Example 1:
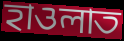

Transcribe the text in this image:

হাওলাত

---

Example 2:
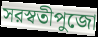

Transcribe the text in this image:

সরস্বতীপুজো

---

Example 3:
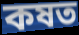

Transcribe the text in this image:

কষত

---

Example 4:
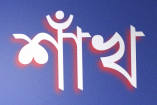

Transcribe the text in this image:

শাঁখ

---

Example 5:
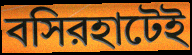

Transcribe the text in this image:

বসিরহাটেই